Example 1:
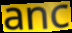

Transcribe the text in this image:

anc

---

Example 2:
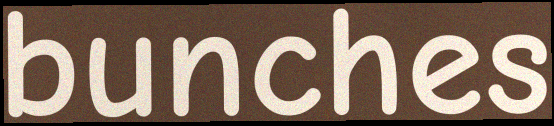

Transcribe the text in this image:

bunches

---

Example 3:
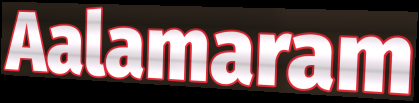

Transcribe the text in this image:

Aalamaram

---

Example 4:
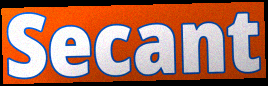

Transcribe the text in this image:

Secant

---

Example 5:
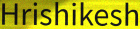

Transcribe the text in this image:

Hrishikesh